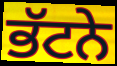
ਭੱਟਨੇ